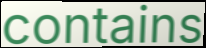
contains